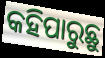
କହିପାରୁଛୁ